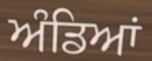
ਅੰਡਿਆਂ